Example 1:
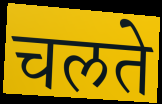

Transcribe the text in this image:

चलते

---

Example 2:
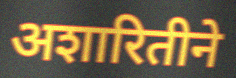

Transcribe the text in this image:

अशारितीने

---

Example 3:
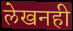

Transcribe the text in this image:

लेखनही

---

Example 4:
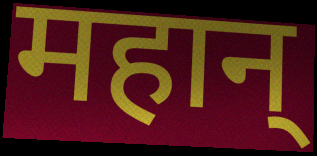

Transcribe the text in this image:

महान्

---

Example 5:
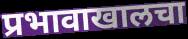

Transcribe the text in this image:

प्रभावाखालचा